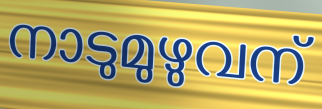
നാടുമുഴുവന്